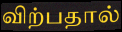
விற்பதால்